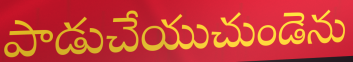
పాడుచేయుచుండెను